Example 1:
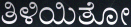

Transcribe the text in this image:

ತಿಳಿಯಿತೋ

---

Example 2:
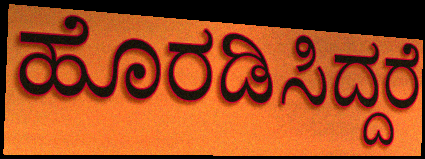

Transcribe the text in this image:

ಹೊರಡಿಸಿದ್ದರೆ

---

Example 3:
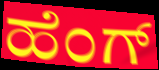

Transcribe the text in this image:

ಹೆಂಗ್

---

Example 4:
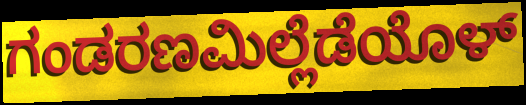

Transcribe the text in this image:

ಗಂಡರಣಮಿಲ್ಲೆಡೆಯೊಳ್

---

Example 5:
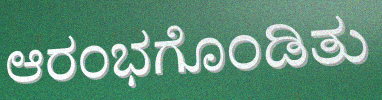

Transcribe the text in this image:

ಆರಂಭಗೊಂಡಿತು